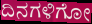
ದಿನಗಳಿಗೋ